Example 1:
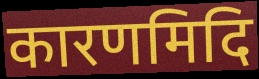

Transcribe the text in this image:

कारणमिदि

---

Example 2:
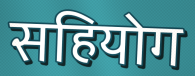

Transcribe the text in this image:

सहियोग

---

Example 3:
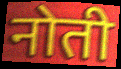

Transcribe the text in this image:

नोती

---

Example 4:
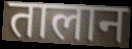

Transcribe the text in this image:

तालान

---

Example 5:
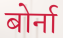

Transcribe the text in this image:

बोर्ना